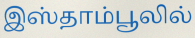
இஸ்தாம்பூலில்